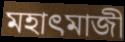
মহাৎমাজী